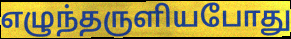
எழுந்தருளியபோது